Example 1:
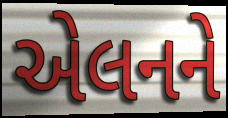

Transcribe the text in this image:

એલનને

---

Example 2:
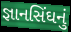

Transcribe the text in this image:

જ્ઞાનસિંઘનું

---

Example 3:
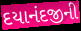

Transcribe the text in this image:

દયાનંદજીની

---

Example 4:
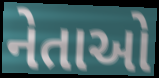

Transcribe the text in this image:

નેતાઓ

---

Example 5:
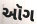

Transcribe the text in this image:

ઑગ